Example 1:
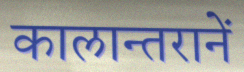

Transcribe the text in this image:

कालान्तरानें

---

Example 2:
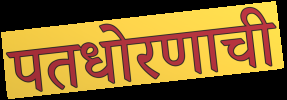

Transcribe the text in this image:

पतधोरणाची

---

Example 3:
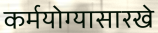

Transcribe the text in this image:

कर्मयोग्यासारखे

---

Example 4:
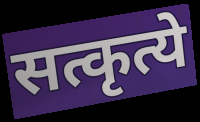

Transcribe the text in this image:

सत्कृत्ये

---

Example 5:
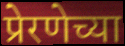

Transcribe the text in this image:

प्रेरणेच्या